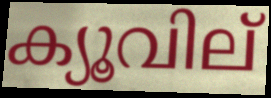
ക്യൂവില്